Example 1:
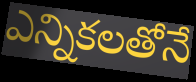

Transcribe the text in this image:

ఎన్నికలతోనే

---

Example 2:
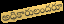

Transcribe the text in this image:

అధికారులందరూ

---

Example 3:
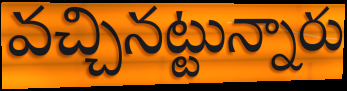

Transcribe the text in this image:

వచ్చినట్టున్నారు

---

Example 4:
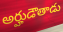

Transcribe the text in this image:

అర్హుడౌతాడు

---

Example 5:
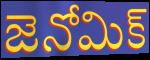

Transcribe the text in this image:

జెనోమిక్